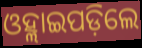
ଓହ୍ଲାଇପଡ଼ିଲେ